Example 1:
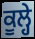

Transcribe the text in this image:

ਕੂਲ੍ਹੇ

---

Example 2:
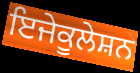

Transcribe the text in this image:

ਇਜੇਕੂਲੇਸ਼ਨ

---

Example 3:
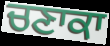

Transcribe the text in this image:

ਚਣਾਕਾ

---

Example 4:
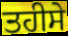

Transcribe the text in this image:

ਤਹੀਸੇ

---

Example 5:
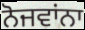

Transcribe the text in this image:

ਨੋਜਵਾਂਨਾ